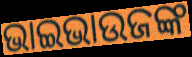
ଭାଇଭାଉଜଙ୍କ